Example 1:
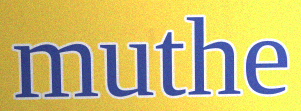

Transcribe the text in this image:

muthe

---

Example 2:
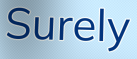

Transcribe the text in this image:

Surely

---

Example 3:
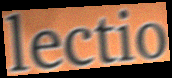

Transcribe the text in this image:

lectio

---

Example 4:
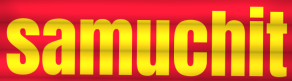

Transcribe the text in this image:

samuchit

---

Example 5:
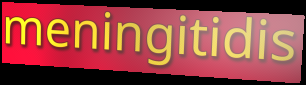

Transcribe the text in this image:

meningitidis